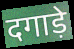
दगाड़े